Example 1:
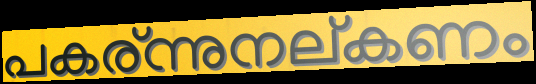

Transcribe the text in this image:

പകര്ന്നുനല്കണം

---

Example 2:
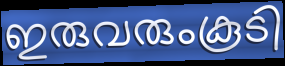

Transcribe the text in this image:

ഇരുവരുംകൂടി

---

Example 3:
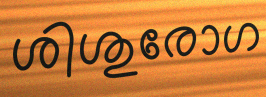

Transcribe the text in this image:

ശിശുരോഗ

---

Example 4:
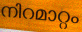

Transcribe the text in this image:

നിറമാറ്റം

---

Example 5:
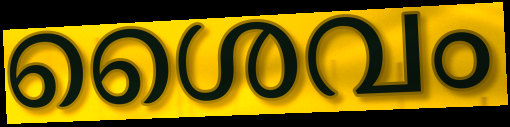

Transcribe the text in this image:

ശൈവം